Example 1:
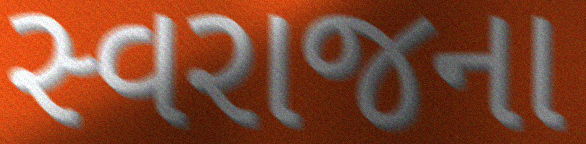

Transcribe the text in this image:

સ્વરાજના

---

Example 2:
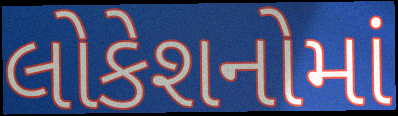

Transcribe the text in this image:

લોકેશનોમાં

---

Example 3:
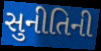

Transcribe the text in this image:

સુનીતિની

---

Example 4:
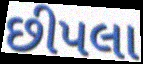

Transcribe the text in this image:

છીપલા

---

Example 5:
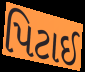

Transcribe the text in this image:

પિટાઈ